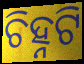
ଚିହ୍ନଟି